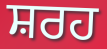
ਸ਼ਰਹ